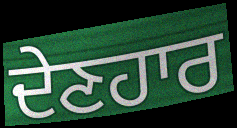
ਦੇਣਹਾਰ